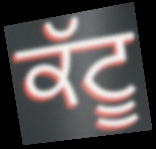
ਕੱਟੂ